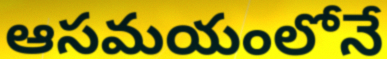
ఆసమయంలోనే